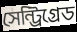
সেন্ট্রিগ্রেড